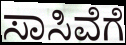
ಸಾಸಿವೆಗೆ